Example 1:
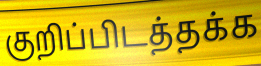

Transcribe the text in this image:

குறிப்பிடத்தக்க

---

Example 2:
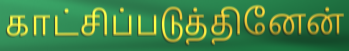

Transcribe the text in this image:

காட்சிப்படுத்தினேன்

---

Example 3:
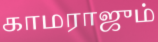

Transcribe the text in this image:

காமராஜும்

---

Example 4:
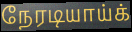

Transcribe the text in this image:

நேரடியாய்க்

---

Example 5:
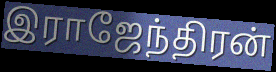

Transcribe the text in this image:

இராஜேந்திரன்